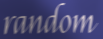
random